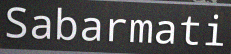
Sabarmati